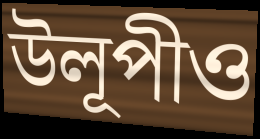
উলূপীও